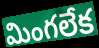
మింగలేక